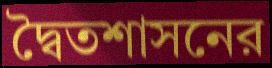
দ্বৈতশাসনের